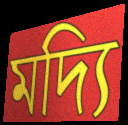
মদ্যি